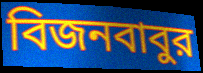
বিজনবাবুর